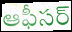
ఆఫీసర్